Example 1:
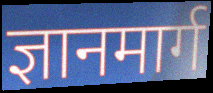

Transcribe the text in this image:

ज्ञानमार्ग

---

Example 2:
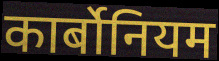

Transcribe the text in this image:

कार्बोनियम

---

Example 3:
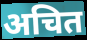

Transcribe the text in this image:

अचित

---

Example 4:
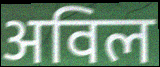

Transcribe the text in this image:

अविल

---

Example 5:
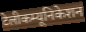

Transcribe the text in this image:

टेलीकम्यूनिकेशन